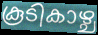
കൂടികാഴ്ച